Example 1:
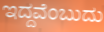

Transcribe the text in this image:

ಇದ್ದವೆಂಬುದು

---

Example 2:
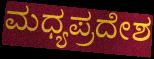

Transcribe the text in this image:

ಮಧ್ಯಪ್ರದೇಶ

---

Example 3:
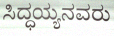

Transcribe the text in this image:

ಸಿದ್ಧಯ್ಯನವರು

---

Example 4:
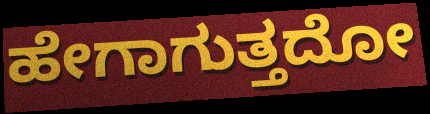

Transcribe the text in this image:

ಹೇಗಾಗುತ್ತದೋ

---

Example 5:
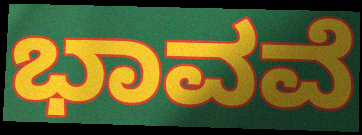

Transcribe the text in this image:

ಭಾವವೆ